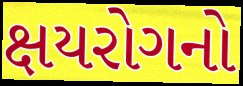
ક્ષયરોગનો